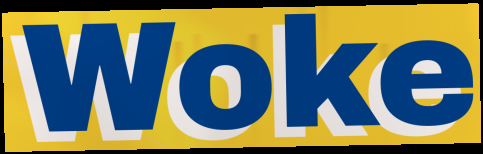
Woke